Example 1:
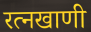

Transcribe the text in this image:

रत्नखाणी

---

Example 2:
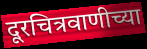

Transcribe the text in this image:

दूरचित्रवाणीच्या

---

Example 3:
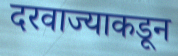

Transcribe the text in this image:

दरवाज्याकडून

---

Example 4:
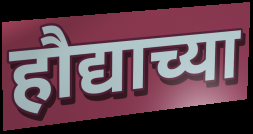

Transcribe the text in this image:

हौद्याच्या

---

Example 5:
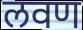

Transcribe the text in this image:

लवण